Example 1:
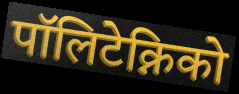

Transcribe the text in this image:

पॉलिटेक्निको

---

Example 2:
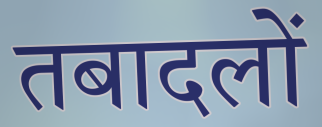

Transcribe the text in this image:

तबादलों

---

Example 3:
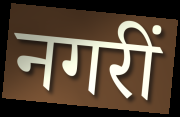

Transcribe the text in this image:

नगरीं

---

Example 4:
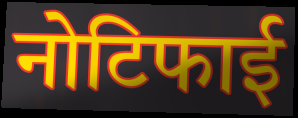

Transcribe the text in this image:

नोटिफाई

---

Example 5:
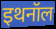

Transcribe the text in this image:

इथनॉल